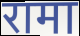
रामा